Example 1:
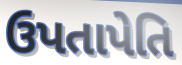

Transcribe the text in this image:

ઉપતાપેતિ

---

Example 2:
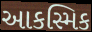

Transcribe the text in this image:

આકસ્મિક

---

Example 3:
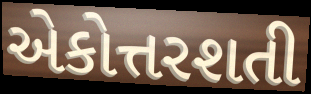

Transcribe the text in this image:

એકોત્તરશતી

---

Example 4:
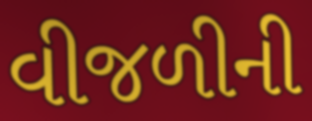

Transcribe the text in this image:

વીજળીની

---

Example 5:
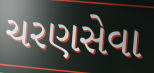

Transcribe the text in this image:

ચરણસેવા